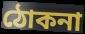
ঠোকনা